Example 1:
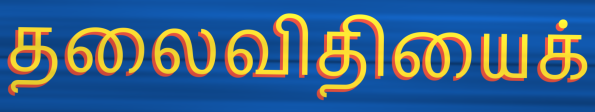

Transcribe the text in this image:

தலைவிதியைக்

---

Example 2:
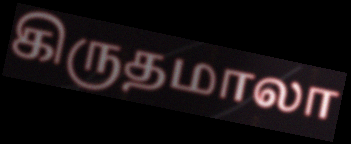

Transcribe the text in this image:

கிருதமாலா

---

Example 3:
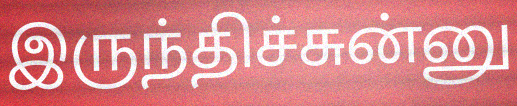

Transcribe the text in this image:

இருந்திச்சுன்னு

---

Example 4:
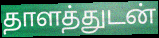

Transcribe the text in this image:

தாளத்துடன்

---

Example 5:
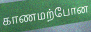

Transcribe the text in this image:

காணமற்போன